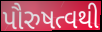
પૌરુષત્વથી